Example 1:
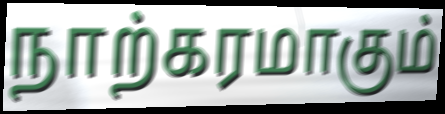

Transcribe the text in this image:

நாற்கரமாகும்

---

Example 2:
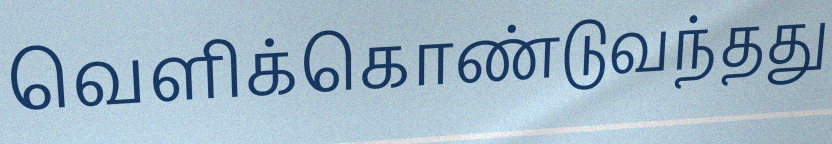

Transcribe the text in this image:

வெளிக்கொண்டுவந்தது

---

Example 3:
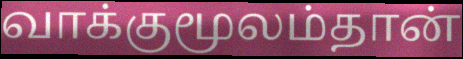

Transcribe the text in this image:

வாக்குமூலம்தான்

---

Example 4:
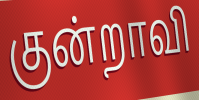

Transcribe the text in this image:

குன்றாவி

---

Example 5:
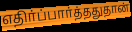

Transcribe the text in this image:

எதிர்ப்பார்த்ததுதான்